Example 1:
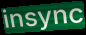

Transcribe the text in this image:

insync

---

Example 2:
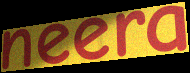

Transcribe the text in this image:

neera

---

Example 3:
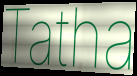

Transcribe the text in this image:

Tatha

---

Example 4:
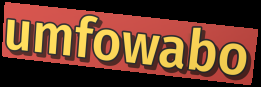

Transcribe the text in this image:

umfowabo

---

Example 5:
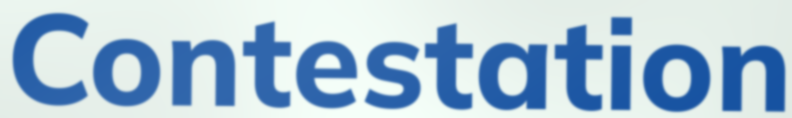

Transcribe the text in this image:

Contestation